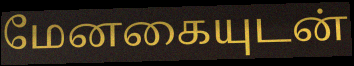
மேனகையுடன்